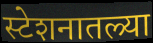
स्टेशनातल्या